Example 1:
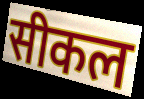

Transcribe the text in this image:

सीकल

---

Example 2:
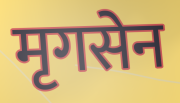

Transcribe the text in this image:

मृगसेन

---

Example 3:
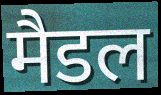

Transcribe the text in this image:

मैडल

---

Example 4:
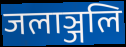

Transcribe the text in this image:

जलाञ्जलि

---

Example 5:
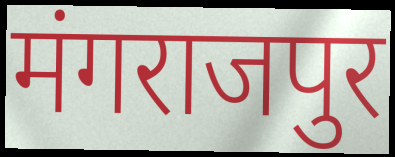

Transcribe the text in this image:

मंगराजपुर